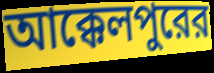
আক্কেলপুরের